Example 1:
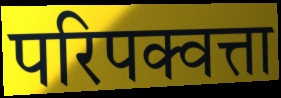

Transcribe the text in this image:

परिपक्वत्ता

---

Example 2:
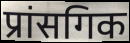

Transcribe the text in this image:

प्रांसगिक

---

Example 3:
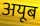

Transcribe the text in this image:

अयूब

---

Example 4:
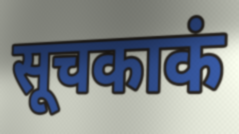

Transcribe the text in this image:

सूचकाकं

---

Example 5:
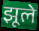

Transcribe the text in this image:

झूले